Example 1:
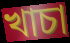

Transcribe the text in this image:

খাচা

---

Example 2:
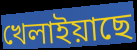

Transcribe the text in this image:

খেলাইয়াছে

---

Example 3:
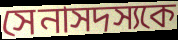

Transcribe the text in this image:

সেনাসদস্যকে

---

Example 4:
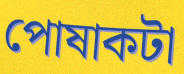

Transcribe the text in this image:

পোষাকটা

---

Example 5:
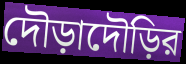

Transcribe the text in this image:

দৌড়াদৌড়ির